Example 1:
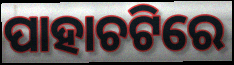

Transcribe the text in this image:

ପାହାଚଟିରେ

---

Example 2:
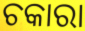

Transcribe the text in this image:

ଚକାରା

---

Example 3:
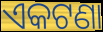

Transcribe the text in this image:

ଏକଟଣା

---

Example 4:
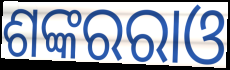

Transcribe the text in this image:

ଶଙ୍କରରାଓ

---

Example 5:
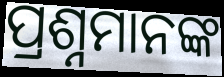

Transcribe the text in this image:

ପ୍ରଶ୍ନମାନଙ୍କ